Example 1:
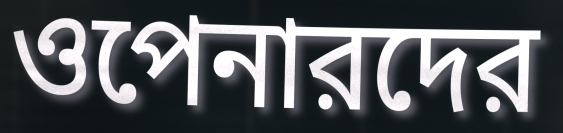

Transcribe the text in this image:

ওপেনারদের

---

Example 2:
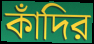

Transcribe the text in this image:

কাঁদির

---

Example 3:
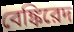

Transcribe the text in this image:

বেঙ্কিরেদ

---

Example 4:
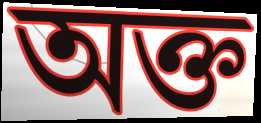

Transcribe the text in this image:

অক্ত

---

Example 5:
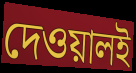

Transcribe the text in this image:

দেওয়ালই